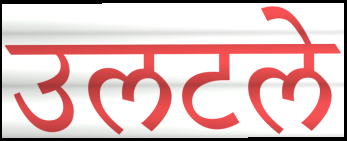
उलटले